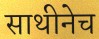
साथीनेच